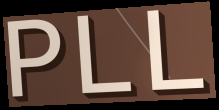
PLL